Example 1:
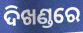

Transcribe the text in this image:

ଦିଖଣ୍ଡରେ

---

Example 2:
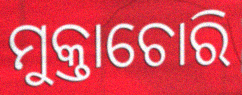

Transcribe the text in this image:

ମୁକ୍ତାଚୋରି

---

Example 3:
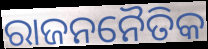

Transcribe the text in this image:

ରାଜନନୈତିକ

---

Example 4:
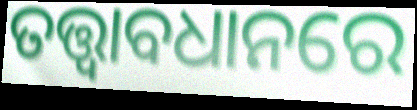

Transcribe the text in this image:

ତତ୍ତ୍ବାବଧାନରେ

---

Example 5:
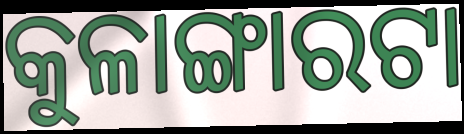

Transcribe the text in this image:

କୁଳାଙ୍ଗାରଟା